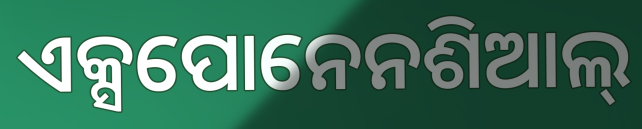
ଏକ୍ସପୋନେନଶିଆଲ୍